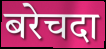
बरेचदा